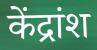
केंद्रांश